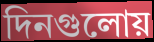
দিনগুলোয়